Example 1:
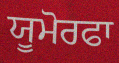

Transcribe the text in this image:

ਯੂਮੋਰਫਾ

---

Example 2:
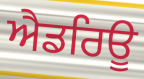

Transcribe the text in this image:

ਐਡਰਿਊ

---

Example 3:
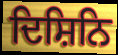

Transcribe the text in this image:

ਦਿਸ਼ਿਨਿ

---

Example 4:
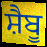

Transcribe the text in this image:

ਸ਼ੈਬੂ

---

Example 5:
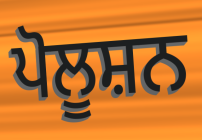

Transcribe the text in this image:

ਪੋਲੂਸ਼ਨ